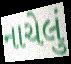
નાચેલું